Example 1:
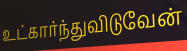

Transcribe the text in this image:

உட்கார்ந்துவிடுவேன்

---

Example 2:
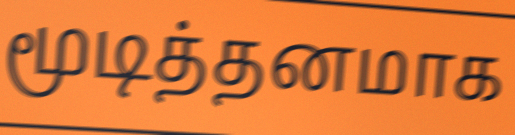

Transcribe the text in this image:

மூடித்தனமாக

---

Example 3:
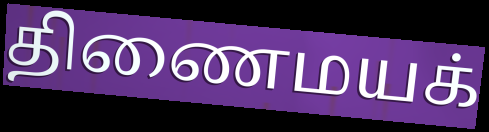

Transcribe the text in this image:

திணைமயக்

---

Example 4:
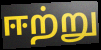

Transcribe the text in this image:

ஈற்று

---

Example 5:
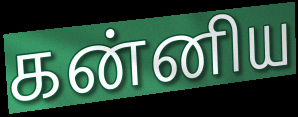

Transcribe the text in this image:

கன்னிய